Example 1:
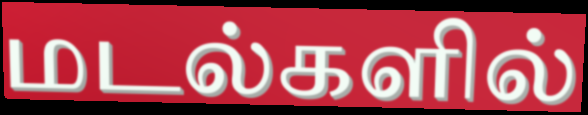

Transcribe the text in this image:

மடல்களில்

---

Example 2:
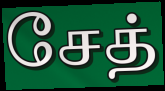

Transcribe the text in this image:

சேத்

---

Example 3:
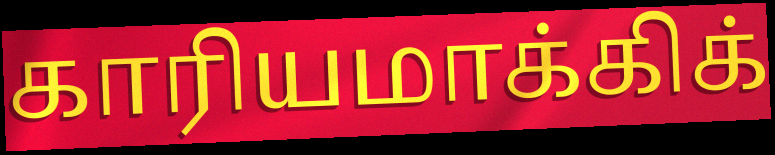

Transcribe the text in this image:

காரியமாக்கிக்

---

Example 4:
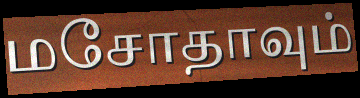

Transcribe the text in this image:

மசோதாவும்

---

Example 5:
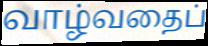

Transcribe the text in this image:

வாழ்வதைப்